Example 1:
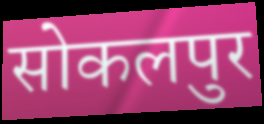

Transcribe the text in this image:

सोकलपुर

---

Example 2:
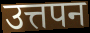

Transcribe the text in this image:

उत्तपन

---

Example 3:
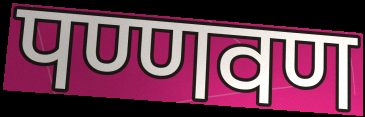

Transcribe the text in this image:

पण्णवण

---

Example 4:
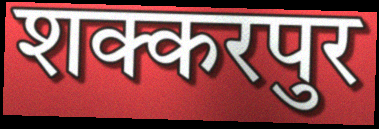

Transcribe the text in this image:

शक्करपुर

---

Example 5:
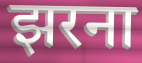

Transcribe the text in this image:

झरना